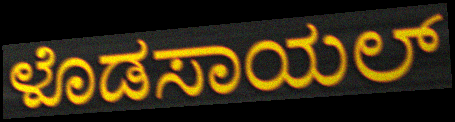
ಳೊಡಸಾಯಲ್